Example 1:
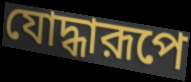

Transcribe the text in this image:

যোদ্ধারূপে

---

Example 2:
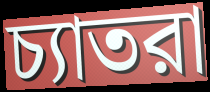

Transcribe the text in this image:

চ্যাতরা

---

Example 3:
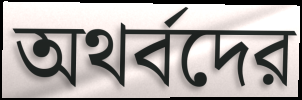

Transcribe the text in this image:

অথর্বদের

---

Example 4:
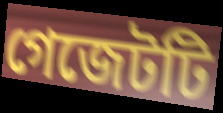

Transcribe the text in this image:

গেজেটটি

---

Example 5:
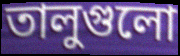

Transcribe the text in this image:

তালুগুলো